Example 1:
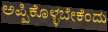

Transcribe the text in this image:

ಅಪ್ಪಿಕೊಳ್ಳಬೇಕೆಂದು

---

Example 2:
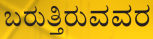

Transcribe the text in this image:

ಬರುತ್ತಿರುವವರ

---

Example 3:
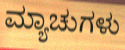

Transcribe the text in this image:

ಮ್ಯಾಚುಗಳು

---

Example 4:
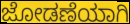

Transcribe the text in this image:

ಜೋಡಣೆಯಾಗಿ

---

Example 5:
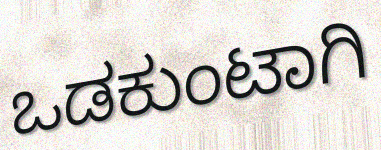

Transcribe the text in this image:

ಒಡಕುಂಟಾಗಿ